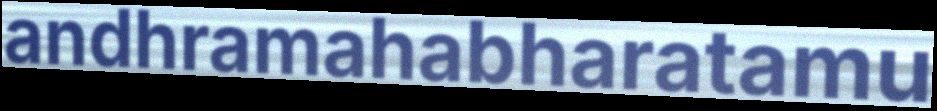
andhramahabharatamu